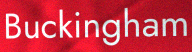
Buckingham